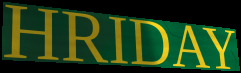
HRIDAY